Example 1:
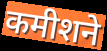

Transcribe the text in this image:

कमीशने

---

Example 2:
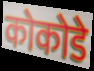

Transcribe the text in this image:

कोकोडे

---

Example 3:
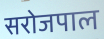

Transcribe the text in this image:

सरोजपाल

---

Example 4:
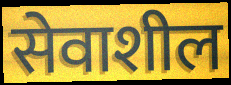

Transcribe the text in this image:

सेवाशील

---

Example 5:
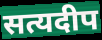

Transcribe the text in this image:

सत्यदीप